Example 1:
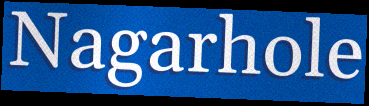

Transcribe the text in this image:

Nagarhole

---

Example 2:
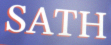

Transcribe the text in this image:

SATH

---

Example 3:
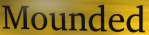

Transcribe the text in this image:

Mounded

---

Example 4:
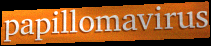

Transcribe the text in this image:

papillomavirus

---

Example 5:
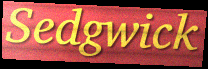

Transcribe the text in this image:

Sedgwick